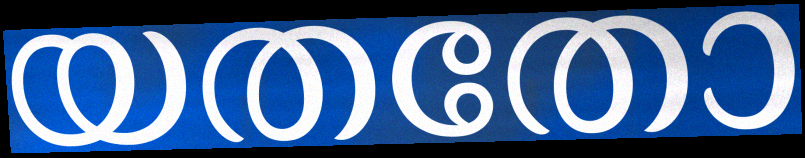
യതതോ